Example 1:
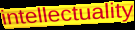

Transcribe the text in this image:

intellectuality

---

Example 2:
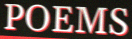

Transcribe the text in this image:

POEMS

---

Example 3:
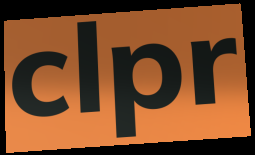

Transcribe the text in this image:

clpr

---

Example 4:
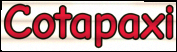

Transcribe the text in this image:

Cotapaxi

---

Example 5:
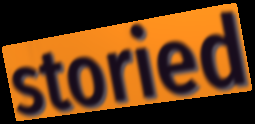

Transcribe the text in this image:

storied